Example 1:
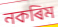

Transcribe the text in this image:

নকৰিম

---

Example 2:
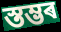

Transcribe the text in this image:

স্তম্ভৰ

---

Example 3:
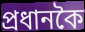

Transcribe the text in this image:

প্ৰধানকৈ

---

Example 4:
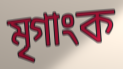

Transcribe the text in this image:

মৃগাংক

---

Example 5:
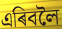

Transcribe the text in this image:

এৰিবলৈ